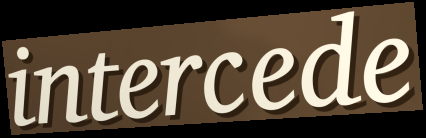
intercede